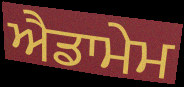
ਐਡਾਮੇਮ